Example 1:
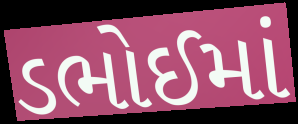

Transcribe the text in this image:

ડભોઈમાં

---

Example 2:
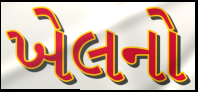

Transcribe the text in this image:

ખેલનો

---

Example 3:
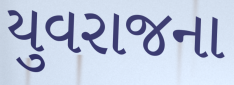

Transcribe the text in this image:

યુવરાજના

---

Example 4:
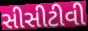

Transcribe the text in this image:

સીસીટીવી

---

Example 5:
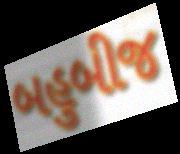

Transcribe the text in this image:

બહુબીજ